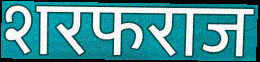
शरफराज